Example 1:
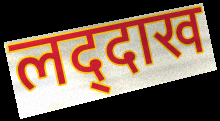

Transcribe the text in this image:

लद्‌दाख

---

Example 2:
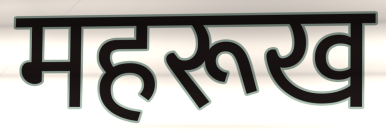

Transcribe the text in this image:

महरूख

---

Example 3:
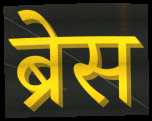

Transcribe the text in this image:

ब्रेस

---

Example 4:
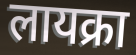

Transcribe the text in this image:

लायक्रा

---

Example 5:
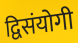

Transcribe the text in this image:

द्विसंयोगी